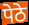
पेठे